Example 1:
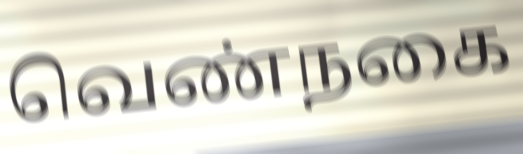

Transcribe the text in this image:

வெண்நகை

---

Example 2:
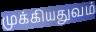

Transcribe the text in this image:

முக்கியதுவம்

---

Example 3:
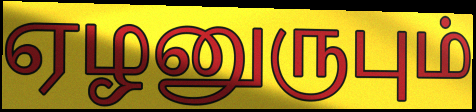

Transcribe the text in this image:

ஏழனுருபும்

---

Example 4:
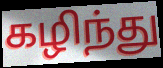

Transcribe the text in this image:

கழிந்து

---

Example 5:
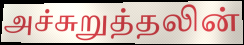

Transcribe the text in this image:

அச்சுறுத்தலின்